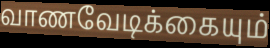
வாணவேடிக்கையும்